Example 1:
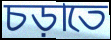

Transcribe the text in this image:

চড়াতে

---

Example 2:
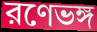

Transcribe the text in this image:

রণেভঙ্গ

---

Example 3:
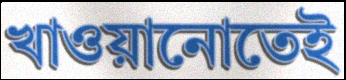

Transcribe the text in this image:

খাওয়ানোতেই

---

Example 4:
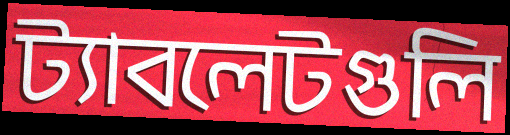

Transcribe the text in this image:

ট্যাবলেটগুলি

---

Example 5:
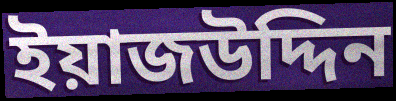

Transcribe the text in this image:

ইয়াজউদ্দিন